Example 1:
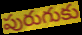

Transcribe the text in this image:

పురుగుకు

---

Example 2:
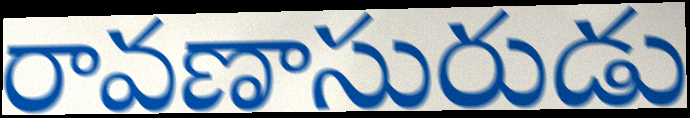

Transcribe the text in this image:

రావణాసురుడు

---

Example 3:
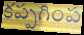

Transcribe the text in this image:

కప్పగింప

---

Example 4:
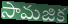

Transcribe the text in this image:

సామజిక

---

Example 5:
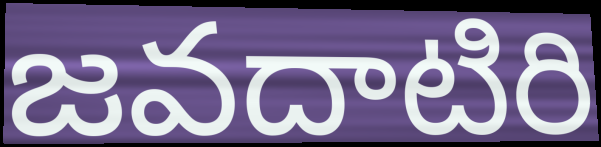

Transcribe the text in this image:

జవదాటిరి